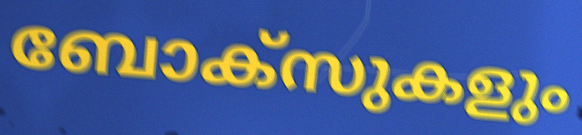
ബോക്സുകളും